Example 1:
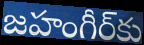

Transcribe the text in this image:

జహంగీర్‌కు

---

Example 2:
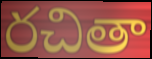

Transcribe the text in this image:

రచితా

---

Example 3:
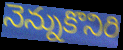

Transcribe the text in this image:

నెన్నుకొనిరి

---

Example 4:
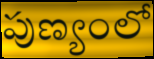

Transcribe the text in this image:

పుణ్యంలో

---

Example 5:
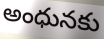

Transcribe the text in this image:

అంధునకు